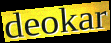
deokar